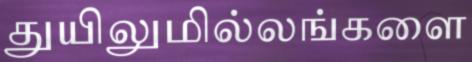
துயிலுமில்லங்களை